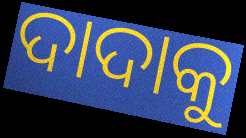
ଦାଦାକୁ